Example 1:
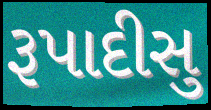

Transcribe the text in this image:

રૂપાદીસુ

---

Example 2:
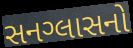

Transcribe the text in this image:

સનગ્લાસનો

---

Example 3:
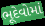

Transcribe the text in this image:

ભૂદેવોમાં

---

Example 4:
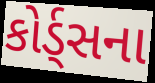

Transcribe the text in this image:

કોર્ડ્સના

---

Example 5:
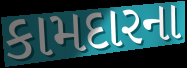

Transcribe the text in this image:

કામદારના